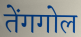
तेंगगोल